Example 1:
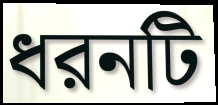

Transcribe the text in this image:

ধরনটি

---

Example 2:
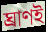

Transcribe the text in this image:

ঘ্রাণই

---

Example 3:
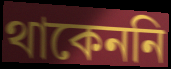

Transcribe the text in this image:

থাকেননি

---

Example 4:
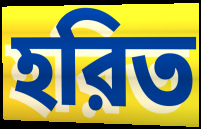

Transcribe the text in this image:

হরিত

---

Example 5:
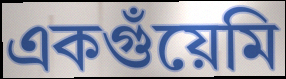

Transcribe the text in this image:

একগুঁয়েমি